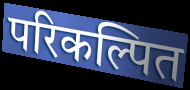
परिकल्पित